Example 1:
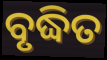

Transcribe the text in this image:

ବୃଦ୍ଧିତ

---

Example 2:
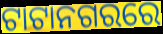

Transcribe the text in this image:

ଟାଟାନଗରରେ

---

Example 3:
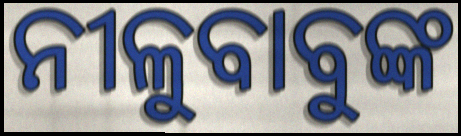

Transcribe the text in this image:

ନୀଳୁବାବୁଙ୍କ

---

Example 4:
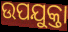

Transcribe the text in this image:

ଉପଯୁକ୍ତା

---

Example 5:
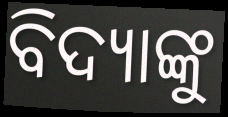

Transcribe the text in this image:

ବିଦ୍ୟାଙ୍କୁ